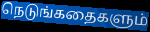
நெடுங்கதைகளும்